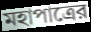
মহাপাত্রের